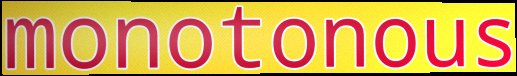
monotonous